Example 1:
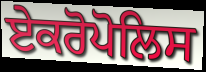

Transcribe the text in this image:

ਏਕਰੋਪੋਲਿਸ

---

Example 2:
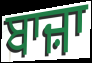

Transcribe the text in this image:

ਬਾਜ਼ਾ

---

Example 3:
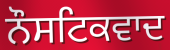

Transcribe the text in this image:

ਨੌਸਟਿਕਵਾਦ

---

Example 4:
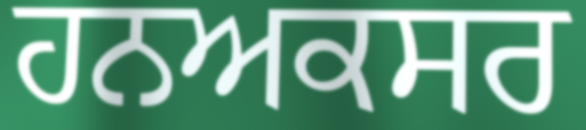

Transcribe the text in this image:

ਹਨਅਕਸਰ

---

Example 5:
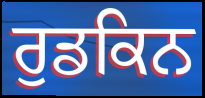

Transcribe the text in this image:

ਰੁਡਕਿਨ